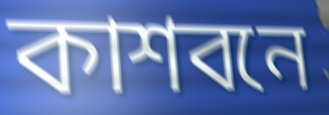
কাশবনে